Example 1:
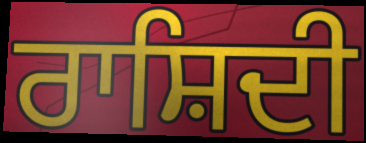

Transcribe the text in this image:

ਰਾਸ਼ਿਦੀ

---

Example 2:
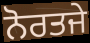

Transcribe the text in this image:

ਨੋਰਤਜੇ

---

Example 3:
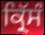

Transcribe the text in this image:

ਕ੍ਰਿੱਸੰ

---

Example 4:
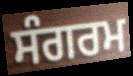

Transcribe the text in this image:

ਸੰਗਰਮ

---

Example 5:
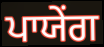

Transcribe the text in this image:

ਪਾਯੇਂਗ